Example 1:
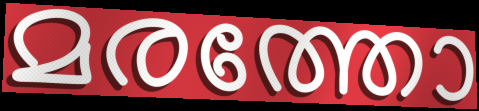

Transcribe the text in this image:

മരത്തോ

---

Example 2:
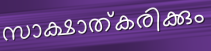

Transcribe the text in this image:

സാക്ഷാത്കരിക്കും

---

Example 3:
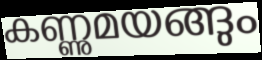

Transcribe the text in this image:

കണ്ണുമയങ്ങും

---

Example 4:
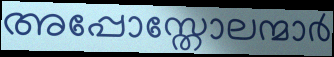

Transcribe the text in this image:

അപ്പോസ്തോലന്മാർ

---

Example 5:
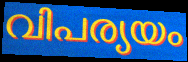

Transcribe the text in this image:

വിപര്യയം